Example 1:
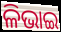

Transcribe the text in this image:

ଳିଭାଇ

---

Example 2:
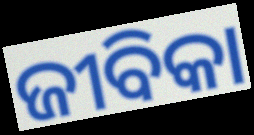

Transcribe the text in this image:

ଜୀବିକା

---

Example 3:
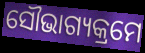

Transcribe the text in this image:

ସୌଭାଗ୍ୟକ୍ରମେ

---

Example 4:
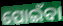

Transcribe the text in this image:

ପୋଇଁବା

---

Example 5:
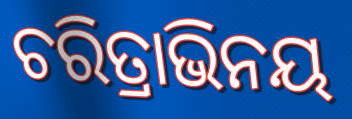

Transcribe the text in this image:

ଚରିତ୍ରାଭିନୟ